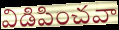
విడిపించవా